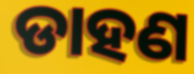
ଡାହଣ